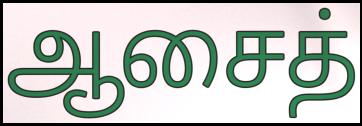
ஆசைத்